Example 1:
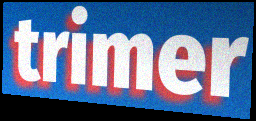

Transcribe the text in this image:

trimer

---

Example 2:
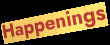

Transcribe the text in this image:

Happenings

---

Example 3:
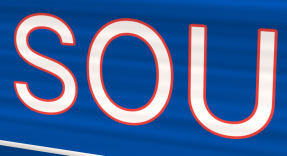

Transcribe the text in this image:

SOU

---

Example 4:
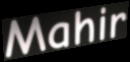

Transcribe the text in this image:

Mahir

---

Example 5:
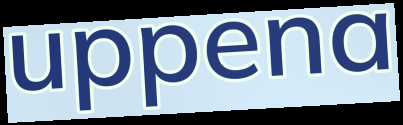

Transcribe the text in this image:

uppena